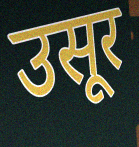
उसूर